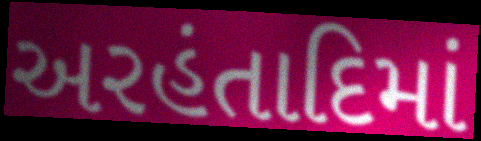
અરહંતાદિમાં